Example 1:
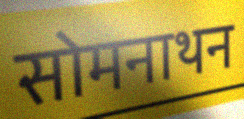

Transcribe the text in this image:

सोमनाथन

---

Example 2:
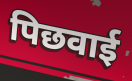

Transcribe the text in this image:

पिछवाई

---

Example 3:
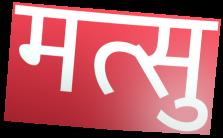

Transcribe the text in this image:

मत्सु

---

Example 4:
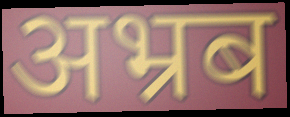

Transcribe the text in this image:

अभ्रब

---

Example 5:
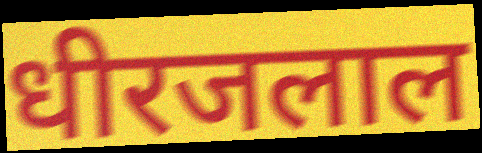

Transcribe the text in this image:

धीरजलाल